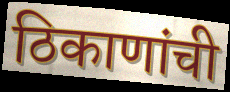
ठिकाणांची